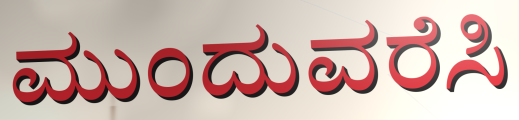
ಮುಂದುವರೆಸಿ